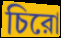
চিরো